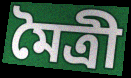
মৈত্ৰী